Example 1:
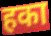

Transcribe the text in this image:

हका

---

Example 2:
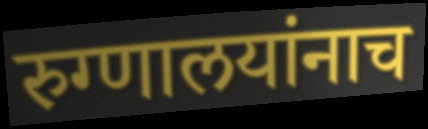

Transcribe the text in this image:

रुग्णालयांनाच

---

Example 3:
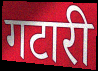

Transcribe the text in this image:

गटारी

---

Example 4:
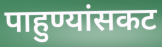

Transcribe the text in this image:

पाहुण्यांसकट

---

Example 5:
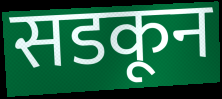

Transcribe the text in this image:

सडकून